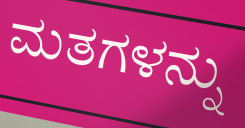
ಮತಗಳನ್ನು